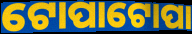
ଟୋପାଟୋପା